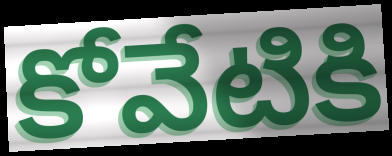
కోవేటికి